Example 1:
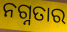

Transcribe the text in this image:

ନଗ୍ନତାର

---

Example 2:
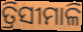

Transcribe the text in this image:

ତ୍ରିସୀମାଳି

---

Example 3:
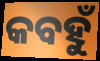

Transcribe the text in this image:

କବହୁଁ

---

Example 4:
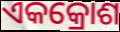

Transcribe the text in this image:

ଏକକ୍ରୋଶ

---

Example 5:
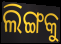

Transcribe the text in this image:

ଲିଙ୍ଗକୁ